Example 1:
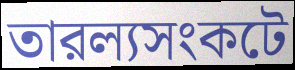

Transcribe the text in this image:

তারল্যসংকটে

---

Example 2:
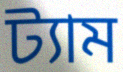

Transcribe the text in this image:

ট্যাম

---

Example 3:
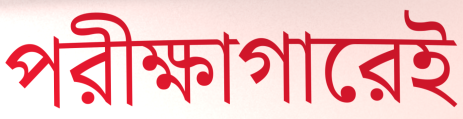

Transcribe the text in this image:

পরীক্ষাগারেই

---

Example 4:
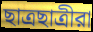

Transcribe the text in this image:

ছাত্রছাত্রীরা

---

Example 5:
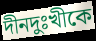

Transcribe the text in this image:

দীনদুঃখীকে